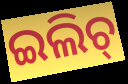
ଇଲିଚ୍